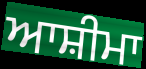
ਆਸ਼ੀਮਾ